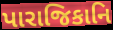
પારાજિકાનિ